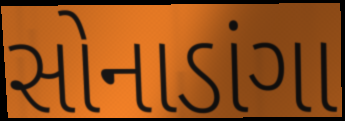
સોનાડાંગા